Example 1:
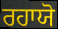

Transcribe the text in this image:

ਰਹਾਯੋ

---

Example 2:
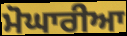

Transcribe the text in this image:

ਮੋਘਾਰੀਆ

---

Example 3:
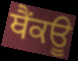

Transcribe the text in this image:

ਥੈਂਕਊ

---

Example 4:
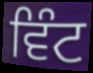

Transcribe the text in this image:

ਵਿੰਟ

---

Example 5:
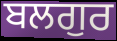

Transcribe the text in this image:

ਬਲਗੁਰ